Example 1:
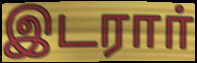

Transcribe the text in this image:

இடரார்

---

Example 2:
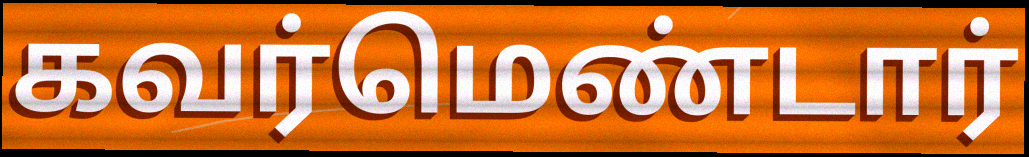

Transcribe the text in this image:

கவர்மெண்டார்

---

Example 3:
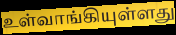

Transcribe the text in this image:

உள்வாங்கியுள்ளது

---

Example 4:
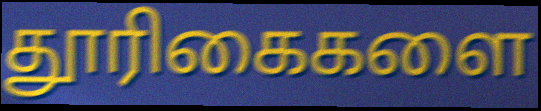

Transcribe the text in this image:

தூரிகைகளை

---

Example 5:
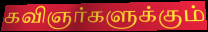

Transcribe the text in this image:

கவிஞர்களுக்கும்